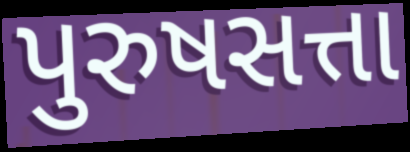
પુરુષસત્તા